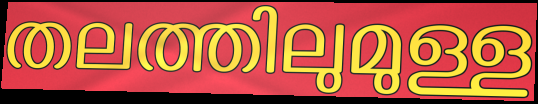
തലത്തിലുമുള്ള